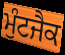
ਮੁੰਟਜੈਕ